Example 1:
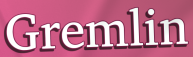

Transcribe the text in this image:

Gremlin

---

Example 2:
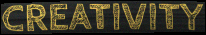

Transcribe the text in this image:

CREATIVITY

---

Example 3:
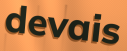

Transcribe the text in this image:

devais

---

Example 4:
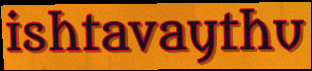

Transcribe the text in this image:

ishtavaythu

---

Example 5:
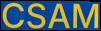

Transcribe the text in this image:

CSAM